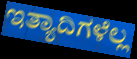
ಇತ್ಯಾದಿಗಳೆಲ್ಲ